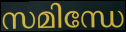
സമിന്ധേ